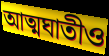
আত্মঘাতীও